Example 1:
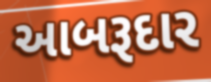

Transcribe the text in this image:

આબરૂદાર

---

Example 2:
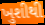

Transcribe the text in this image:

ખુશીથી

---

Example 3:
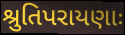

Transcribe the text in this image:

શ્રુતિપરાયણાઃ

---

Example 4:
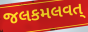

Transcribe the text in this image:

જલકમલવત્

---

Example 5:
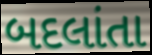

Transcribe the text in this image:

બદલાંતા